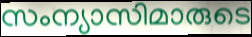
സംന്യാസിമാരുടെ